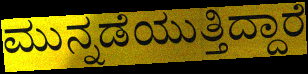
ಮುನ್ನಡೆಯುತ್ತಿದ್ದಾರೆ